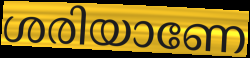
ശരിയാണേ